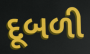
દૂબળી